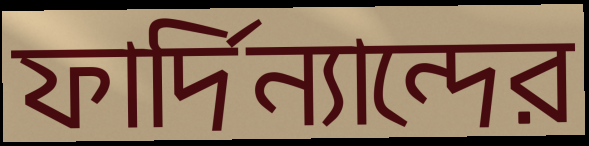
ফার্দিন্যান্দের